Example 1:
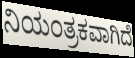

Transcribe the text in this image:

ನಿಯಂತ್ರಕವಾಗಿದೆ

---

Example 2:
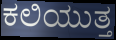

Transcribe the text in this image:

ಕಲಿಯುತ್ತ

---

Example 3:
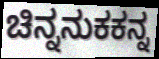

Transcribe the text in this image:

ಚಿನ್ನನುಕಕನ್ನ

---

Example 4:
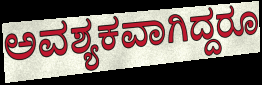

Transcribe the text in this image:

ಅವಶ್ಯಕವಾಗಿದ್ದರೂ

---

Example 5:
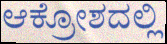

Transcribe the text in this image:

ಆಕ್ರೋಶದಲ್ಲಿ